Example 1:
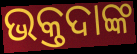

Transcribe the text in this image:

ଭକ୍ତଦାଙ୍କ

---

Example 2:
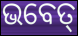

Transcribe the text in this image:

ଭବେତ୍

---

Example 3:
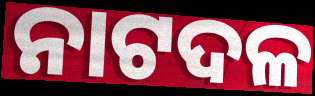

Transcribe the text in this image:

ନାଟଦଳ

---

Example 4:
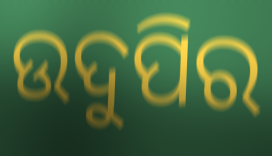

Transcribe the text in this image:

ଉଦୁପିର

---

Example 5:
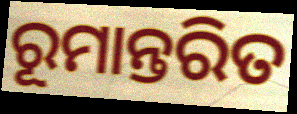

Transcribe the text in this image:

ରୂମାନ୍ତରିତ